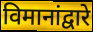
विमानांद्वारे